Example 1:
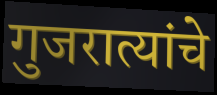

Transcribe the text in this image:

गुजरात्यांचे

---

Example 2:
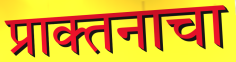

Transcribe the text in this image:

प्राक्तनाचा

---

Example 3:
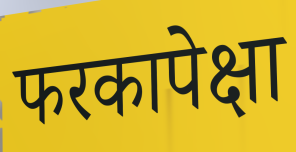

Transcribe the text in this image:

फरकापेक्षा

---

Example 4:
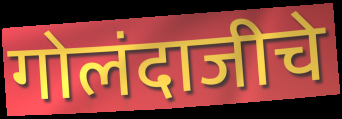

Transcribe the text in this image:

गोलंदाजीचे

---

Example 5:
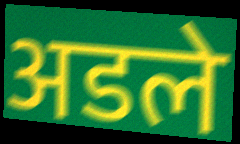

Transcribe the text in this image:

अडले